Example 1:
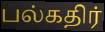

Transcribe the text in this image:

பல்கதிர்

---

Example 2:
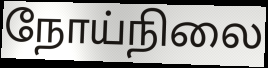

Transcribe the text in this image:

நோய்நிலை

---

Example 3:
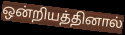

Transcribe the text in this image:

ஒன்றியத்தினால்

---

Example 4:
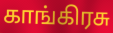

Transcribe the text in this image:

காங்கிரசு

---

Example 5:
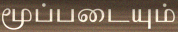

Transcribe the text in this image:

மூப்படையும்